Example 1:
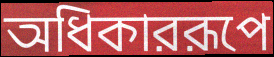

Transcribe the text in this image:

অধিকাররূপে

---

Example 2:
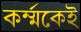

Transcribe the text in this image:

কর্ম্মকেই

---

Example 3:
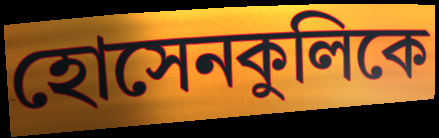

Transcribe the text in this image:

হোসেনকুলিকে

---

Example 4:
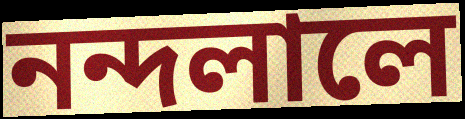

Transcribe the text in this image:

নন্দলালে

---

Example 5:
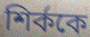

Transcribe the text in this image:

শির্ককে